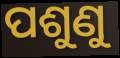
ପଶୁଣୁ